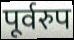
पूर्वरुप